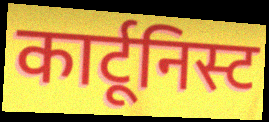
कार्टूनिस्ट